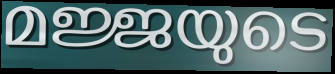
മജ്ജയുടെ